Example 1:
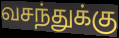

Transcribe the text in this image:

வசந்துக்கு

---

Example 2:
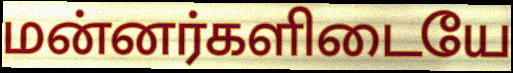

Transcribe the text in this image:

மன்னர்களிடையே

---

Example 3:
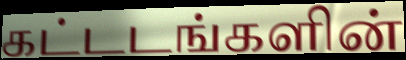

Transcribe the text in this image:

கட்டடங்களின்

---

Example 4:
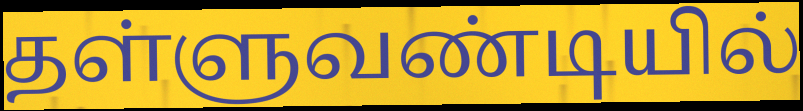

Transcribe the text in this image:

தள்ளுவண்டியில்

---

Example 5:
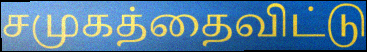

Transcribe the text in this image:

சமுகத்தைவிட்டு